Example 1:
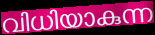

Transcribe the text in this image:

വിധിയാകുന്ന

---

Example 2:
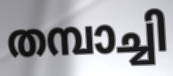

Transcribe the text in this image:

തമ്പാച്ചി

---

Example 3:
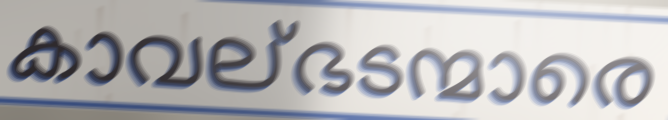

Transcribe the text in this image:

കാവല്ഭടന്മാരെ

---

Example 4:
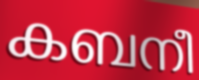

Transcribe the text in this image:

കബനീ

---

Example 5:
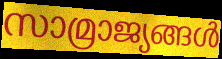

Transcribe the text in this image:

സാമ്രാജ്യങ്ങൾ